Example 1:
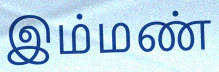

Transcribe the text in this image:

இம்மண்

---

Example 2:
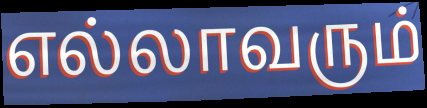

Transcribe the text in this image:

எல்லாவரும்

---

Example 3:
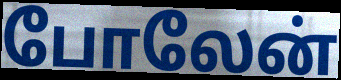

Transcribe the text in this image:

போலேன்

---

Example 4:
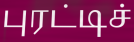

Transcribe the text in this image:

புரட்டிச்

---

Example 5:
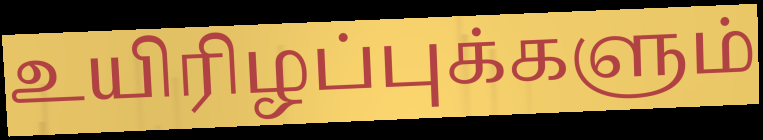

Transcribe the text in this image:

உயிரிழப்புக்களும்